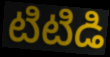
టిటిడి